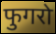
फुगरो